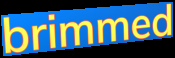
brimmed